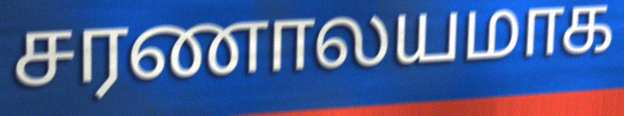
சரணாலயமாக